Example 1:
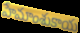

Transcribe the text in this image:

హేమాంశుకాయ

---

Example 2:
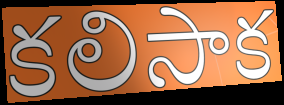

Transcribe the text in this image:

కలిసాక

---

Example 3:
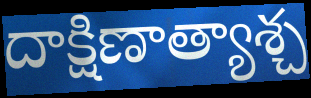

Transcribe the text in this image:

దాక్షిణాత్యాశ్చ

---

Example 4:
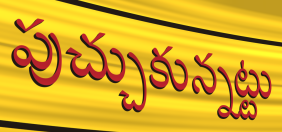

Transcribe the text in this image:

పుచ్చుకున్నట్టు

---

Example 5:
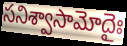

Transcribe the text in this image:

సనిశ్వాసామోదైః